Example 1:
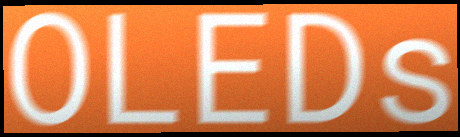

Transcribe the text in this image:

OLEDs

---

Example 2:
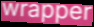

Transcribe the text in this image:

wrapper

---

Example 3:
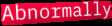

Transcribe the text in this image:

Abnormally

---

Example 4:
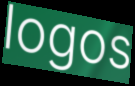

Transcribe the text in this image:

logos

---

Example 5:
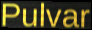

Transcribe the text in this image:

Pulvar